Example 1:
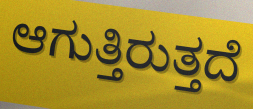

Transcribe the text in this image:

ಆಗುತ್ತಿರುತ್ತದೆ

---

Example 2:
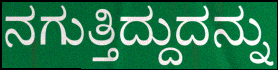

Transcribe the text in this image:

ನಗುತ್ತಿದ್ದುದನ್ನು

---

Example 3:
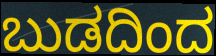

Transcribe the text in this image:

ಬುಡದಿಂದ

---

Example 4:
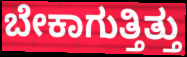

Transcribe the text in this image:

ಬೇಕಾಗುತ್ತಿತ್ತು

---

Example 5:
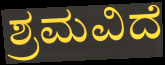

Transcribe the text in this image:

ಶ್ರಮವಿದೆ